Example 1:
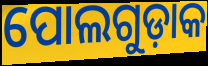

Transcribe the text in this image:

ପୋଲଗୁଡ଼ାକ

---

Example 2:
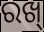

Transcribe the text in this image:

ରଖ୍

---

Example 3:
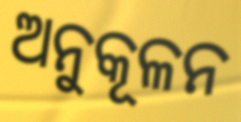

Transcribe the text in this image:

ଅନୁକୂଳନ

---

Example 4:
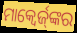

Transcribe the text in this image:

ମାକ୍ୱେର୍ଜ୍‌ଙ୍କର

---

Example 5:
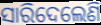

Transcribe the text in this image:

ସାରିଦେଲେଣି